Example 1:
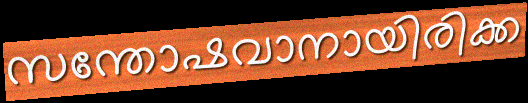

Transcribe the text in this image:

സന്തോഷവാനായിരിക്ക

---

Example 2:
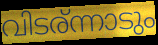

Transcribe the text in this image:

വിടര്ന്നാടും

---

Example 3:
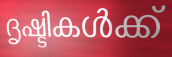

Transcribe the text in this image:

ദൃഷ്ടികൾക്ക്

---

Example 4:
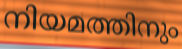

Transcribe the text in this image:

നിയമത്തിനും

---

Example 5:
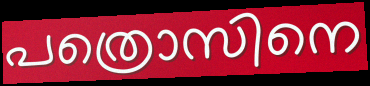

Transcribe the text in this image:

പത്രൊസിനെ